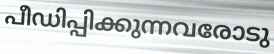
പീഡിപ്പിക്കുന്നവരോടു